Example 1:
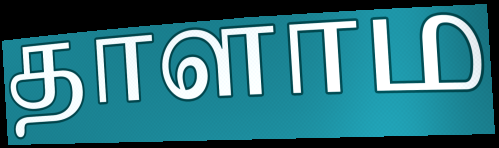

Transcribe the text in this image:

தாளாம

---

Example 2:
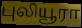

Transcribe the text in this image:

புலியூரா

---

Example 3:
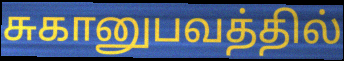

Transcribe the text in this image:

சுகானுபவத்தில்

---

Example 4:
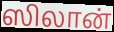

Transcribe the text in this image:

ஸிலான்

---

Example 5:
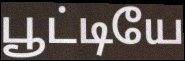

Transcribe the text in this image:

பூட்டியே